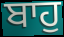
ਬਾਹੁ